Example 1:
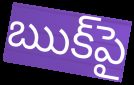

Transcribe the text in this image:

ఋక్‌పై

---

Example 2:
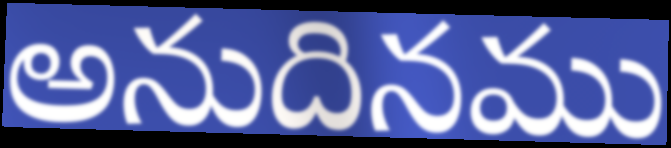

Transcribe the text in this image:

అనుదినము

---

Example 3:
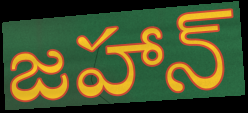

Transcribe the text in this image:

జహాన్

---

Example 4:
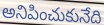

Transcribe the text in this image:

అనిపించుకునేది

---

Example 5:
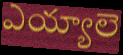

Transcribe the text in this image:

ఎయ్యాలె